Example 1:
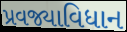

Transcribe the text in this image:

પ્રવજ્યાવિધાન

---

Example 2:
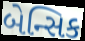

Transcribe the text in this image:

બેન્સિક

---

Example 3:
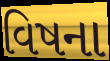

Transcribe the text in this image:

વિષના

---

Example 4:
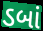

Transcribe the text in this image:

ડબાં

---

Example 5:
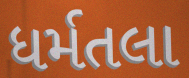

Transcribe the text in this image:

ધર્મતલા